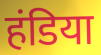
हंडिया